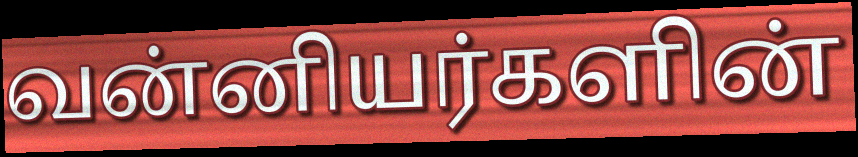
வன்னியர்களின்